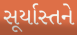
સૂર્યાસ્તને